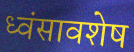
ध्वंसावशेष